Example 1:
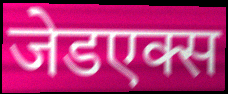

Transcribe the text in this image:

जेडएक्स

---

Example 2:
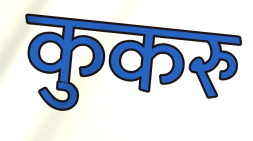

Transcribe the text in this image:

कुकरु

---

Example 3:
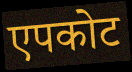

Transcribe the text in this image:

एपकोट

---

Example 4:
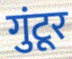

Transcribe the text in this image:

गुंटूर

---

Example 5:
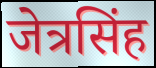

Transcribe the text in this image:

जेत्रसिंह